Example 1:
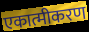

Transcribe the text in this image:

एकात्मीकरण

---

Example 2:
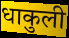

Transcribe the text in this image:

धाकुली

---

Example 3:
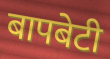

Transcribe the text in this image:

बापबेटी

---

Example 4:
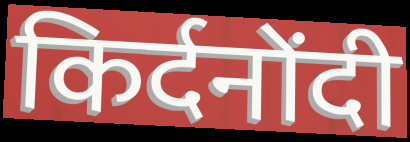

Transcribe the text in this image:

किर्दनोंदी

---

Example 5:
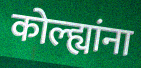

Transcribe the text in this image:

कोल्ह्यांना